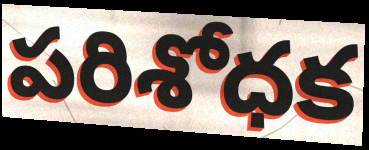
పరిశోధక